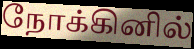
நோக்கினில்